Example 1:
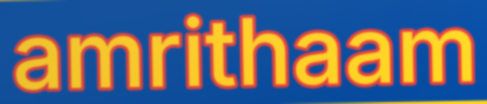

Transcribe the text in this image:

amrithaam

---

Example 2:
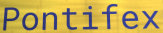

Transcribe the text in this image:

Pontifex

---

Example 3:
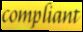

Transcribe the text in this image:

compliant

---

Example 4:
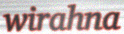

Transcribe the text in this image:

wirahna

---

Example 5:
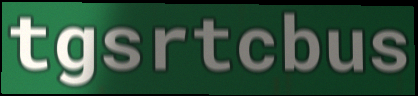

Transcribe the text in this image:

tgsrtcbus